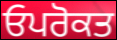
ਓਪਰੋਕਤ